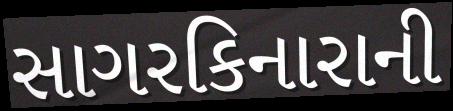
સાગરકિનારાની